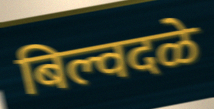
बिल्वदळे